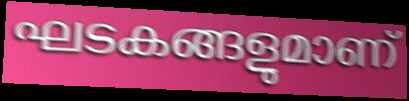
ഘടകങ്ങളുമാണ്